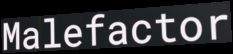
Malefactor